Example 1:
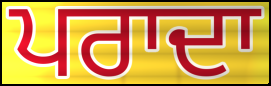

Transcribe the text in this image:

ਪਰਾਦਾ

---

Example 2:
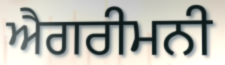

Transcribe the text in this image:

ਐਗਰੀਮਨੀ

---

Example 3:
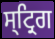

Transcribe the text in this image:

ਸ੍ਟ੍ਰਿਗ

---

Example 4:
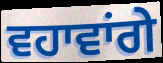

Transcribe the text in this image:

ਵਹਾਵਾਂਗੇ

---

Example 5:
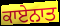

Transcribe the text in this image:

ਕਾਏਨਾਤ